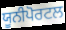
ਯੂਨੀਪੋਰਟਲ